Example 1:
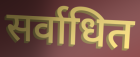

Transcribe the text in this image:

सर्वाधित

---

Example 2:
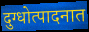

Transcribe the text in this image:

दुग्धोत्पादनात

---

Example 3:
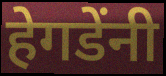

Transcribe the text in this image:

हेगडेंनी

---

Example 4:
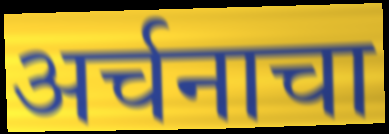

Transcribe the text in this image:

अर्चनाचा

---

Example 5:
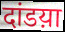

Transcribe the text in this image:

दांडय़ा